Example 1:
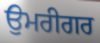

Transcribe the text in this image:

ਉਮਰੀਗਰ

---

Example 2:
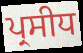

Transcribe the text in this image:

ਪ੍ਰਸੀਧ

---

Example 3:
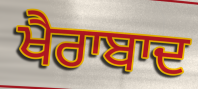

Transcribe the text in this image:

ਖੈਰਾਬਾਦ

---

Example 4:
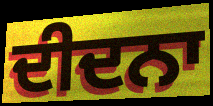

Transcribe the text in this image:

ਦੀਦਨਾ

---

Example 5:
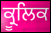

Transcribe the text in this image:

ਕ੍ਰੂਲਿਕ